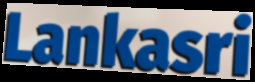
Lankasri